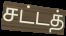
சட்டத்